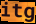
itg